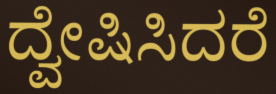
ದ್ವೇಷಿಸಿದರೆ